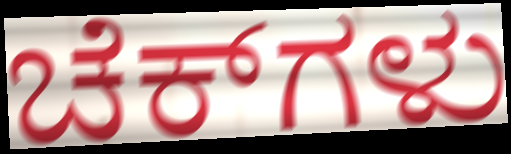
ಚೆಕ್‌ಗಳು